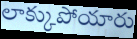
లాక్కుపోయారు